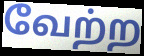
வேற்ற